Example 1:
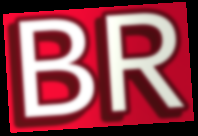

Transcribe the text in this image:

BR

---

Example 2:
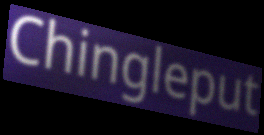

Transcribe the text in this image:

Chingleput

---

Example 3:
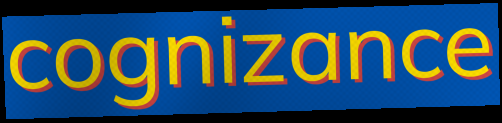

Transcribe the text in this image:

cognizance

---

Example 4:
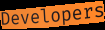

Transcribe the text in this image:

Developers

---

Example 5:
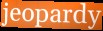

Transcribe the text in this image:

jeopardy